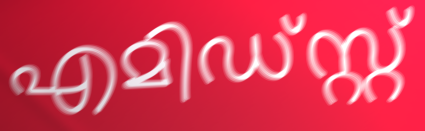
എമിഡ്സ്റ്റ്